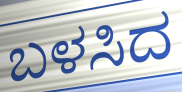
ಬಳಸಿದ